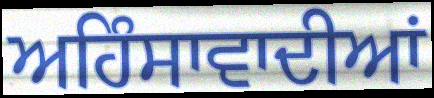
ਅਹਿੰਸਾਵਾਦੀਆਂ